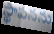
స్థాపనను